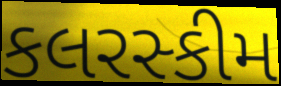
કલરસ્કીમ